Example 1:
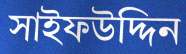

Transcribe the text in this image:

সাইফউদ্দিন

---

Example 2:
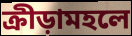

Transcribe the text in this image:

ক্রীড়ামহলে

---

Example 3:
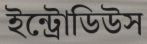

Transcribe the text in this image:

ইন্ট্রোডিউস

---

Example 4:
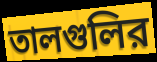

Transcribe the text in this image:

তালগুলির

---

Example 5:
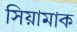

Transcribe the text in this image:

সিয়ামাক